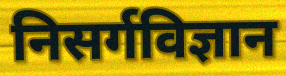
निसर्गविज्ञान